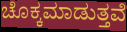
ಚೊಕ್ಕಮಾಡುತ್ತವೆ